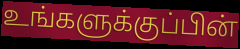
உங்களுக்குப்பின்